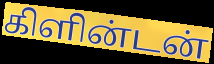
கிளின்டன்